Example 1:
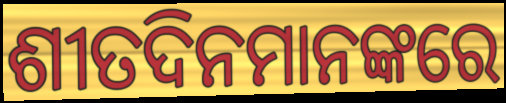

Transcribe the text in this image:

ଶୀତଦିନମାନଙ୍କରେ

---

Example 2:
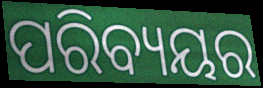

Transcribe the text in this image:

ପରିବ୍ୟୟର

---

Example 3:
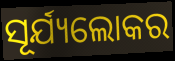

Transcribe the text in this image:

ସୂର୍ଯ୍ୟଲୋକର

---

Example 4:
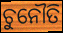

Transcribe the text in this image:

ଚୁନୌତି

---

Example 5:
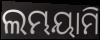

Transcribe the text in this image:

ଲମ୍ଭୟାମି